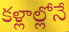
కళ్లాల్లోనే